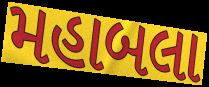
મહાબલા